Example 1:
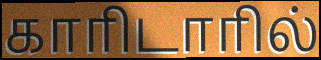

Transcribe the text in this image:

காரிடாரில்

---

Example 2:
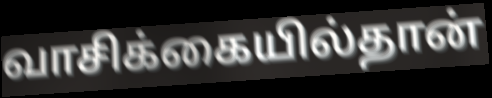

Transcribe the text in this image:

வாசிக்கையில்தான்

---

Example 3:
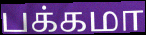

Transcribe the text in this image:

பக்கமா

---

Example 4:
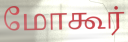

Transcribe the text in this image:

மோகூர்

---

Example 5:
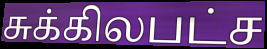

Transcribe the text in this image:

சுக்கிலபட்ச